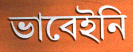
ভাবেইনি